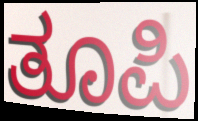
ತೂಪಿ